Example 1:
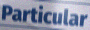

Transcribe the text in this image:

Particular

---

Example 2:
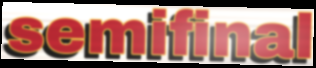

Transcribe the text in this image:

semifinal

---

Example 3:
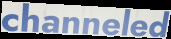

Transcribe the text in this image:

channeled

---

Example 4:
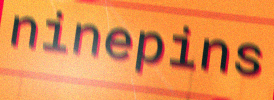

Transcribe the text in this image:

ninepins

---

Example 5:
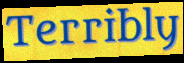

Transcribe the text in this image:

Terribly